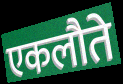
एकलौते